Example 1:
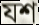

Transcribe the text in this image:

যশ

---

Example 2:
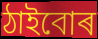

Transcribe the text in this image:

ঠাইবোৰ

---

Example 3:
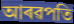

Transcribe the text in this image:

আৰৱপতি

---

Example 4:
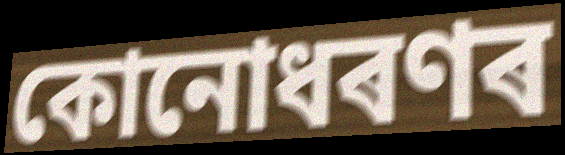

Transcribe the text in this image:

কোনোধৰণৰ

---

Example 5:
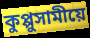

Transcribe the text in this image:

কুপ্পুসামীয়ে